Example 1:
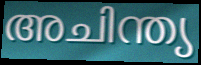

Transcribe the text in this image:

അചിന്ത്യ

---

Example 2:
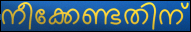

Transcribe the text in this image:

നീക്കേണ്ടതിന്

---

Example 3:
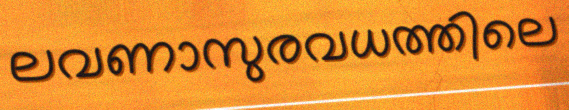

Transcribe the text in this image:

ലവണാസുരവധത്തിലെ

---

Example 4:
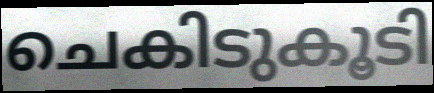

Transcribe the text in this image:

ചെകിടുകൂടി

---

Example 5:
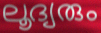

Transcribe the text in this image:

ലൂദ്യരും